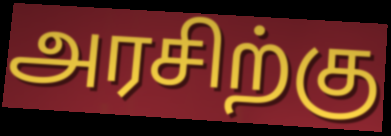
அரசிற்கு